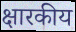
क्षारकीय